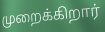
முறைக்கிறார்